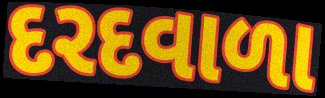
દરદવાળા